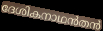
ദേശികനാഥൻതൻ